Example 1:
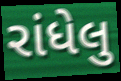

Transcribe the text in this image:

રાંધેલુ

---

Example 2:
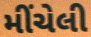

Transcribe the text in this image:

મીંચેલી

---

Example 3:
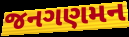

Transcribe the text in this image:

જનગણમન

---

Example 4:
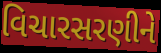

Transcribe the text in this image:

વિચારસરણીને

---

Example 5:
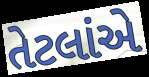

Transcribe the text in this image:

તેટલાંએ